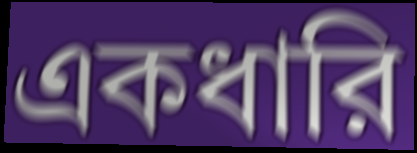
একধারি